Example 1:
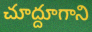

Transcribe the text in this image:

చూద్దూగాని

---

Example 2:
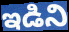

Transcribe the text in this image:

ఇడిని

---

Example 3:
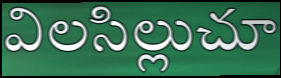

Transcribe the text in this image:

విలసిల్లుచూ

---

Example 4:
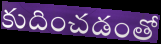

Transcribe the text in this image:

కుదించడంతో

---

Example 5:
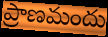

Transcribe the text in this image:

ప్రాణమందు